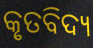
କୃତବିଦ୍ୟ